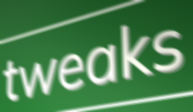
tweaks